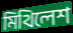
মিথিলেশ